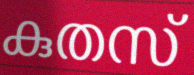
കുതസ്